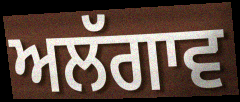
ਅਲੱਗਾਵ